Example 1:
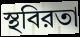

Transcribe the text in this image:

স্থবিরতা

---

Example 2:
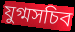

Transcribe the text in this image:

যুগ্মসচিব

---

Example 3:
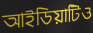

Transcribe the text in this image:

আইডিয়াটিও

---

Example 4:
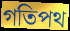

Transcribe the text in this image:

গতিপথ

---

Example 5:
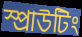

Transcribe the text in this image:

স্প্রাউটিং